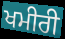
ਖਮੀਰੀ